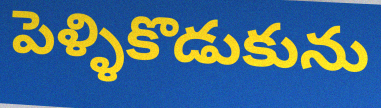
పెళ్ళికొడుకును